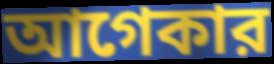
আগেকার